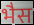
भैस